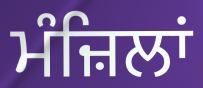
ਮੰਜ਼ਿਲਾਂ